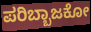
ಪರಿಬ್ಬಾಜಕೋ